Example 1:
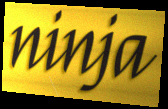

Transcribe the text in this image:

ninja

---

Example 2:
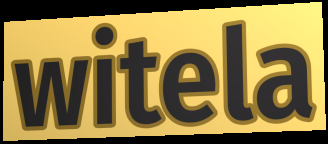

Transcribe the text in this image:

witela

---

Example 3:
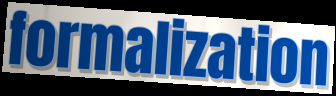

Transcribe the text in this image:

formalization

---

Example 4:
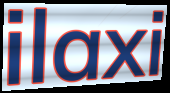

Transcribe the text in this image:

ilaxi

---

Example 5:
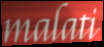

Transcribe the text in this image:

malati